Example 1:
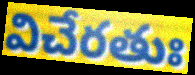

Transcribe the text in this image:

విచేరతుః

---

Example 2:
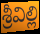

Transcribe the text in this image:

శ్రీవిల్లి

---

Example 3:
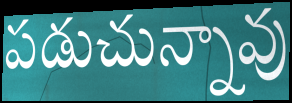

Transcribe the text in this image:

పడుచున్నావు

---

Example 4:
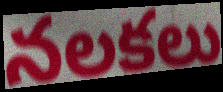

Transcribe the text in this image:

నలకలు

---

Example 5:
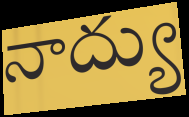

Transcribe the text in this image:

నాద్యు